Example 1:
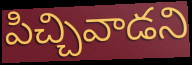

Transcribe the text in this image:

పిచ్చివాడని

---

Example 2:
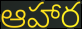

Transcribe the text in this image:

ఆహార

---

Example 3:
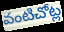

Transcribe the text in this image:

వంటిచోట్ల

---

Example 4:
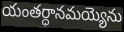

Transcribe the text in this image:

యంతర్ధానమయ్యెను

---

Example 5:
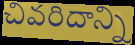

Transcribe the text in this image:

చివరిదాన్ని